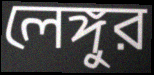
লেঙ্গুর